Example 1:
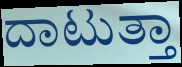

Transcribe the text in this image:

ದಾಟುತ್ತಾ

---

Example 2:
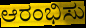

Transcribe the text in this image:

ಆರಂಭಿಸು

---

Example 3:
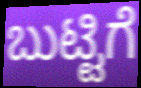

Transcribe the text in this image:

ಬುಟ್ಟಿಗೆ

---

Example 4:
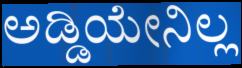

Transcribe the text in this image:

ಅಡ್ಡಿಯೇನಿಲ್ಲ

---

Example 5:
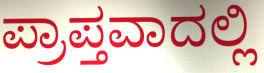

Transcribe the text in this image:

ಪ್ರಾಪ್ತವಾದಲ್ಲಿ